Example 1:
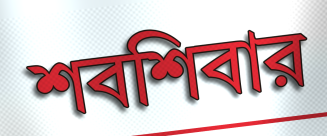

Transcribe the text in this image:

শবশিবার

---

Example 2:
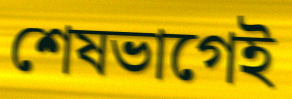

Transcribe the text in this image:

শেষভাগেই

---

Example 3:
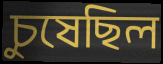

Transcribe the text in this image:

চুষেছিল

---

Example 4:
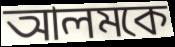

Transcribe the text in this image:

আলমকে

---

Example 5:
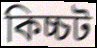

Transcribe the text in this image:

কিচ্চট